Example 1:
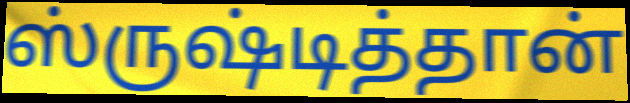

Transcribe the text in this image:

ஸ்ருஷ்டித்தான்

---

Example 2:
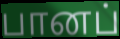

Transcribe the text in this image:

பானப்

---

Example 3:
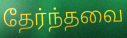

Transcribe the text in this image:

தேர்ந்தவை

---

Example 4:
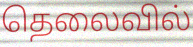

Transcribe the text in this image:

தெலைவில்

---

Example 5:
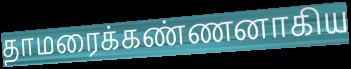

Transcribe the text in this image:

தாமரைக்கண்ணனாகிய